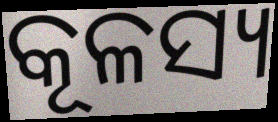
କୂଳସ୍ଯ